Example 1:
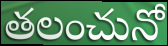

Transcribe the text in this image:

తలంచునో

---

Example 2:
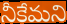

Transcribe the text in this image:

నీకేమని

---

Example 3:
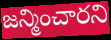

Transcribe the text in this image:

జన్మించారని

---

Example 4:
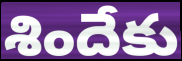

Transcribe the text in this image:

శిందేకు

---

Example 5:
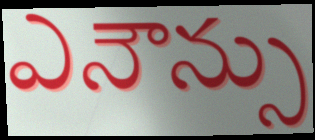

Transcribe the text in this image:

ఎనౌన్సు